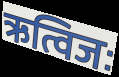
ऋत्विजः